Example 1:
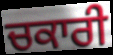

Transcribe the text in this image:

ਚਕਾਰੀ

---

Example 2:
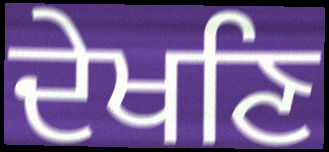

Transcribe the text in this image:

ਦੇਖਣਿ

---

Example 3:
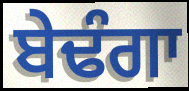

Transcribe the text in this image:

ਬੇਢੰਗਾ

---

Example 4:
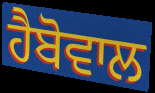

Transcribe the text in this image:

ਹੈਬੋਵਾਲ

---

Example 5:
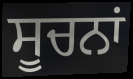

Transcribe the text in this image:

ਸੂਚਨਾਂ